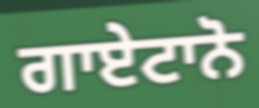
ਗਾਏਟਾਨੋ